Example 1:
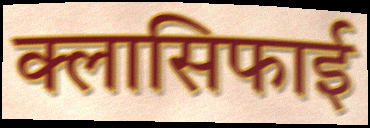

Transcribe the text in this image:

क्लासिफाई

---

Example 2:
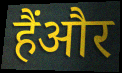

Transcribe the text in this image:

हैंऔर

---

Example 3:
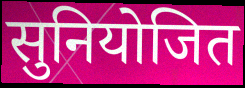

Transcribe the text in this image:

सुनियोजित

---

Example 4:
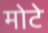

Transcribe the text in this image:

मोटे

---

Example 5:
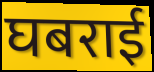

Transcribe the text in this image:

घबराई